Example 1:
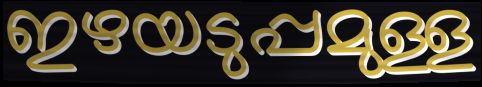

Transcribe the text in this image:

ഇഴയടുപ്പമുള്ള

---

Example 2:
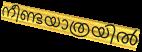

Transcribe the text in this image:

നീണ്ടയാത്രയിൽ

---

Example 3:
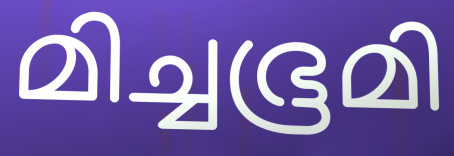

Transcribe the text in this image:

മിച്ചഭൂമി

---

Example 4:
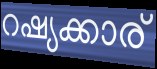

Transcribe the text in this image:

റഷ്യക്കാര്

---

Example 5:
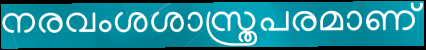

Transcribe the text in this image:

നരവംശശാസ്ത്രപരമാണ്